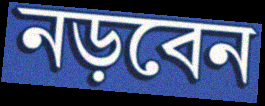
নড়বেন